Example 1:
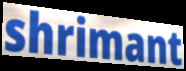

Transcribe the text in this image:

shrimant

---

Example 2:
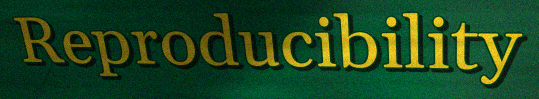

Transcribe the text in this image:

Reproducibility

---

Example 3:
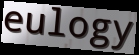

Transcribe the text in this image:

eulogy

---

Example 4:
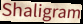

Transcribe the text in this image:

Shaligram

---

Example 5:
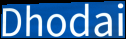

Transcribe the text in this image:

Dhodai